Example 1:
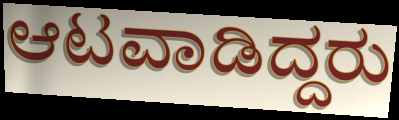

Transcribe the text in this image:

ಆಟವಾಡಿದ್ದರು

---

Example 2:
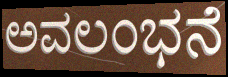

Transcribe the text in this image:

ಅವಲಂಭನೆ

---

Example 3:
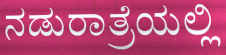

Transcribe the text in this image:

ನಡುರಾತ್ರೆಯಲ್ಲಿ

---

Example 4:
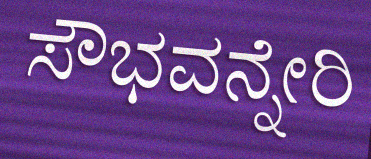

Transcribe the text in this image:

ಸೌಭವನ್ನೇರಿ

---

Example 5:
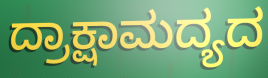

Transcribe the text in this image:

ದ್ರಾಕ್ಷಾಮದ್ಯದ